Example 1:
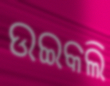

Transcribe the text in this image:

ଉଇକଲି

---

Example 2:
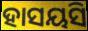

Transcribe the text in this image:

ହାସୟସି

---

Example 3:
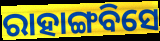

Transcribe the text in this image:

ରାହାଙ୍ଗବିସେ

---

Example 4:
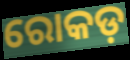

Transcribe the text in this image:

ରୋକଡ଼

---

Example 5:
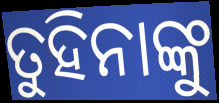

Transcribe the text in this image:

ତୁହିନାଙ୍କୁ